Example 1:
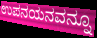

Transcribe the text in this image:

ಉಪನಯನವನ್ನೂ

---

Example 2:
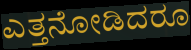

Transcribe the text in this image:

ಎತ್ತನೋಡಿದರೂ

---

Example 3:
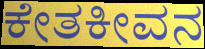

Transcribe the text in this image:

ಕೇತಕೀವನ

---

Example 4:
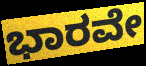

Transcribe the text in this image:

ಭಾರವೇ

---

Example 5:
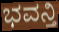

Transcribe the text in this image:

ಭವನ್ತಿ